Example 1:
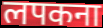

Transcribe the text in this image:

लपकना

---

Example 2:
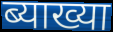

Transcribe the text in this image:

ब्याख्या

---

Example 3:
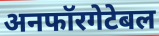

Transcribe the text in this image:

अनफॉरगेटेबल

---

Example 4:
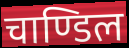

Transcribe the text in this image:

चाण्डिल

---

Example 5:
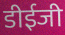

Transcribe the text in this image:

डीईजी